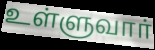
உள்ளுவார்